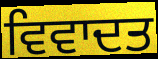
ਵਿਵਾਦਤ